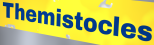
Themistocles